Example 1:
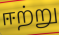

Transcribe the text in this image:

ஈற்று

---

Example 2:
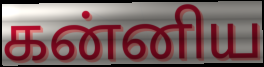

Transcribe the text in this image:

கன்னிய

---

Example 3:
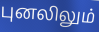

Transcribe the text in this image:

புனலிலும்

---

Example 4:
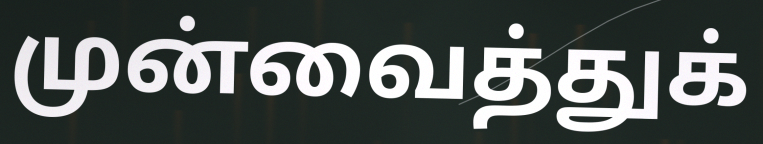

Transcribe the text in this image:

முன்வைத்துக்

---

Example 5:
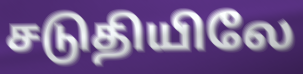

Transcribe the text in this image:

சடுதியிலே